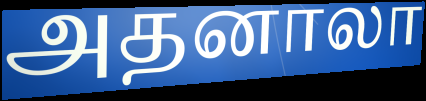
அதனாலா